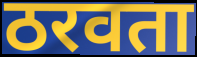
ठरवता